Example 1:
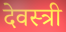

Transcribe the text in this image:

देवस्त्री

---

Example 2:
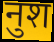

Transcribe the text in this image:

नुश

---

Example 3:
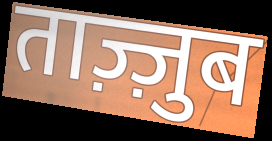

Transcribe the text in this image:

ताज़्ज़ुब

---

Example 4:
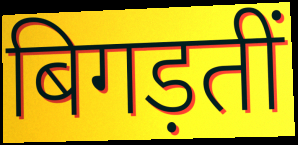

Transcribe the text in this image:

बिगड़तीं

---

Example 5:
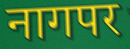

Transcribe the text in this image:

नागपर